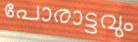
പോരാട്ടവും